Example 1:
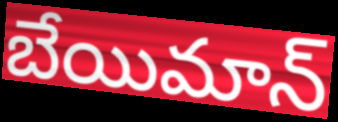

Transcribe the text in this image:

బేయిమాన్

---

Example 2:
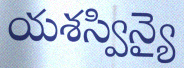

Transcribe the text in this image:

యశస్విన్యై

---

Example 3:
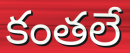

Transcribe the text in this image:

కంతలే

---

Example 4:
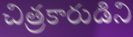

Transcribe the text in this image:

చిత్రకారుడిని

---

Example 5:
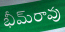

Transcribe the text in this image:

భీమ్‌రావు